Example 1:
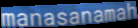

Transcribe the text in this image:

manasanamah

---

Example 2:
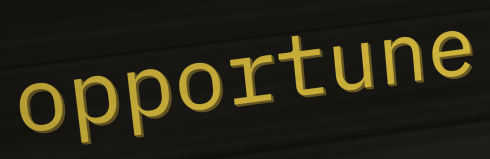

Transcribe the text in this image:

opportune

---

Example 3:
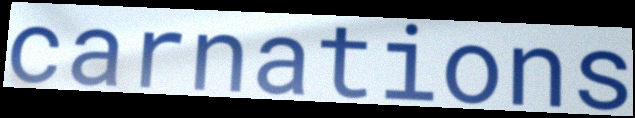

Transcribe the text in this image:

carnations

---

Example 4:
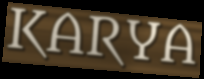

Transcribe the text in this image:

KARYA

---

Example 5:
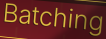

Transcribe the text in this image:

Batching